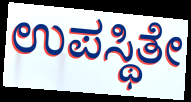
ಉಪಸ್ಥಿತೇ